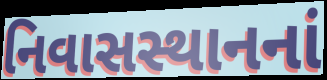
નિવાસસ્થાનનાં